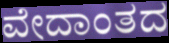
ವೇದಾಂತದ